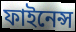
ফাইনেন্স